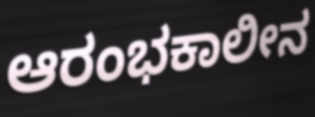
ಆರಂಭಕಾಲೀನ